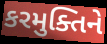
કરમુક્તિને